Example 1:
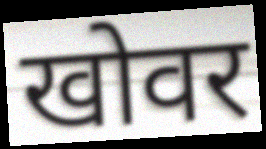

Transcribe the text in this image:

खोवर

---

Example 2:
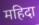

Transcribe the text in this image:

महिदा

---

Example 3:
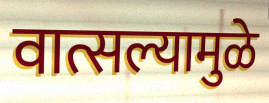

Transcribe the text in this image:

वात्सल्यामुळे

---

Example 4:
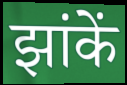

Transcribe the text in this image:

झांकें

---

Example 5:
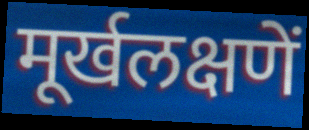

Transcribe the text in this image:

मूर्खलक्षणें